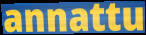
annattu